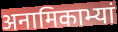
अनामिकाभ्यां